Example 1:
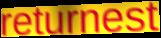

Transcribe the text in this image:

returnest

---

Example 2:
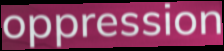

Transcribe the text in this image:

oppression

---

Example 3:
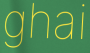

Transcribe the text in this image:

ghai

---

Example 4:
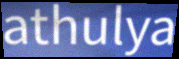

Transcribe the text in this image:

athulya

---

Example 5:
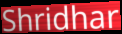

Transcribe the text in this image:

Shridhar